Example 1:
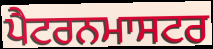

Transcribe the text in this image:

ਪੈਟਰਨਮਾਸਟਰ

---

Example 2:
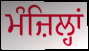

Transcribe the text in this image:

ਮੰਜ਼ਿਲ੍ਹਾਂ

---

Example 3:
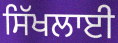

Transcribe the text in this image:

ਸਿੱਖਲਾਈ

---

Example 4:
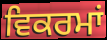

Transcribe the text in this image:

ਵਿਕਰਮਾਂ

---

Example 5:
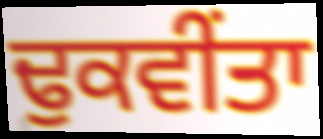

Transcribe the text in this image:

ਢੁਕਵੀਂਤਾ